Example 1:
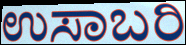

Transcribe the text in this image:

ಉಸಾಬರಿ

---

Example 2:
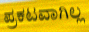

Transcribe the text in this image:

ಪ್ರಕಟವಾಗಿಲ್ಲ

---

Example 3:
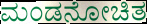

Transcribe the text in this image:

ಮಂಡನೋಚಿತ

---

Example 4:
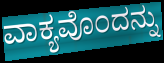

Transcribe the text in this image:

ವಾಕ್ಯವೊಂದನ್ನು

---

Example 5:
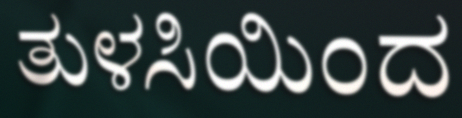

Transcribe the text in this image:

ತುಳಸಿಯಿಂದ